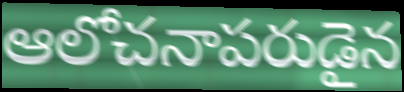
ఆలోచనాపరుడైన